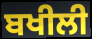
ਬਖੀਲੀ